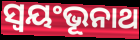
ସ୍ଵୟଂଭୂନାଥ